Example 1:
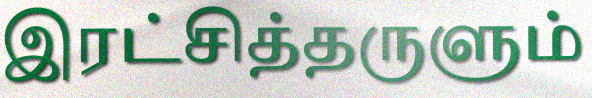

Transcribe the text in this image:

இரட்சித்தருளும்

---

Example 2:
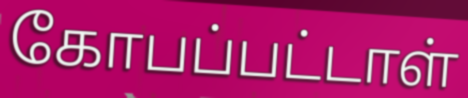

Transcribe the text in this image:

கோபப்பட்டாள்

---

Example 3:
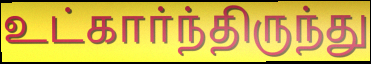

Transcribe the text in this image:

உட்கார்ந்திருந்து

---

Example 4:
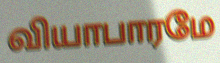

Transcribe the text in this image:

வியாபாரமே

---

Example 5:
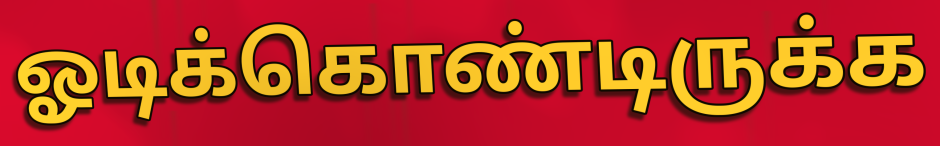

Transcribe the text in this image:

ஓடிக்கொண்டிருக்க